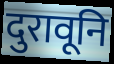
दुरावूनि